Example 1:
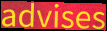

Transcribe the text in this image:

advises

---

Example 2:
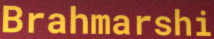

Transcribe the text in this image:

Brahmarshi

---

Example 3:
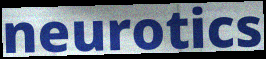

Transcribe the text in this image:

neurotics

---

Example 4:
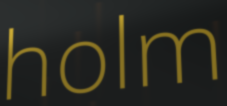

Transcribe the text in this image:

holm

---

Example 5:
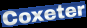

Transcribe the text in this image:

Coxeter